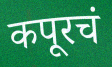
कपूरचं